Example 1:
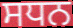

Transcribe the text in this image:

ਸਧਨ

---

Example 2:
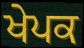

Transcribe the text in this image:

ਖੇਪਕ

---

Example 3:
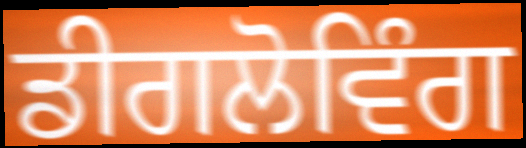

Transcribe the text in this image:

ਡੀਗਲੋਵਿੰਗ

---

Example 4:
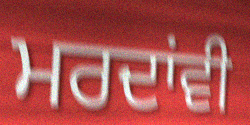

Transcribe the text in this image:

ਮਰਦਾਂਵੀ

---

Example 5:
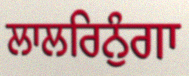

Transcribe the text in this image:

ਲਾਲਰਿਨੁੰਗਾ